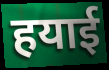
हयाई